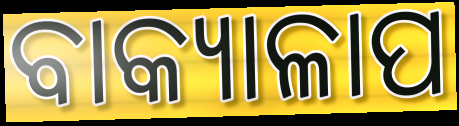
ବାକ୍ୟାଳାପ